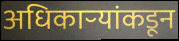
अधिकाऱ्यांकडून